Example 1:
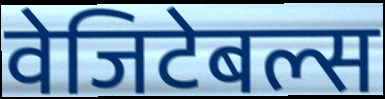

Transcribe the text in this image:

वेजिटेबल्स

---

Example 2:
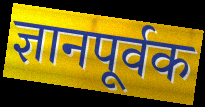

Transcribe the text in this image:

ज्ञानपूर्वक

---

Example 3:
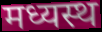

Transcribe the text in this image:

मध्यस्थ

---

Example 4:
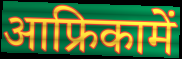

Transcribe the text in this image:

आफ्रिकामें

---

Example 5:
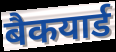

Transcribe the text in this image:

बैकयार्ड